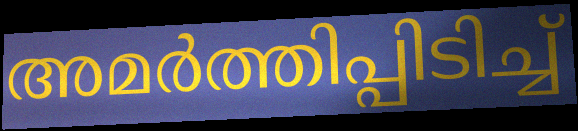
അമർത്തിപ്പിടിച്ച്